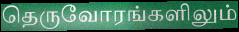
தெருவோரங்களிலும்